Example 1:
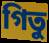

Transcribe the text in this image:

গিতু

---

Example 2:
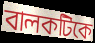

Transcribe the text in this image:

বালকটিকে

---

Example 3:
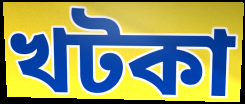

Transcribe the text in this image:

খটকা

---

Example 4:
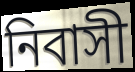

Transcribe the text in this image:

নিবাসী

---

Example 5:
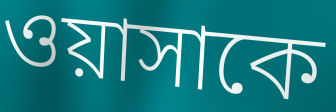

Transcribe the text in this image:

ওয়াসাকে